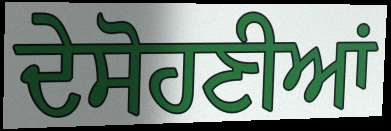
ਦੇਸੋਹਣੀਆਂ